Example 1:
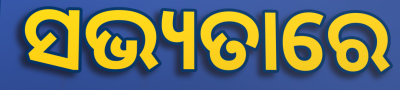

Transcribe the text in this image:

ସଭ୍ୟତାରେ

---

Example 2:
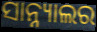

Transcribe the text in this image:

ସାନ୍ନ୍ୟାଲର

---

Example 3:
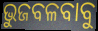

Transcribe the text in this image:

ଭୁଜବଳବାବୁ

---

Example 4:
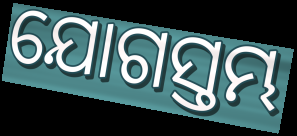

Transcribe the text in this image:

ଯୋଗସ୍ତମ୍ଭ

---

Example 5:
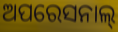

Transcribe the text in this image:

ଅପରେସନାଲ୍